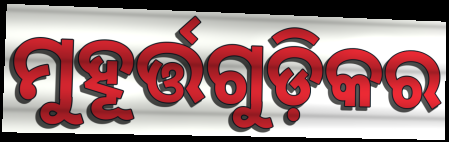
ମୁହୂର୍ତ୍ତଗୁଡ଼ିକର